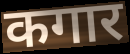
कगार